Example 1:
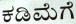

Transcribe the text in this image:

ಕಡಿಮೆಗೆ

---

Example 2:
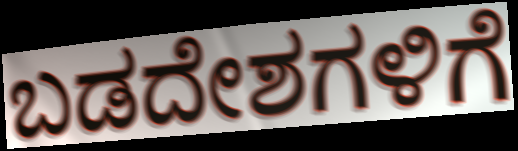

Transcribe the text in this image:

ಬಡದೇಶಗಳಿಗೆ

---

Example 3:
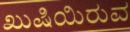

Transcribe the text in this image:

ಖುಷಿಯಿರುವ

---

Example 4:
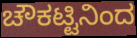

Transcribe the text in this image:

ಚೌಕಟ್ಟಿನಿಂದ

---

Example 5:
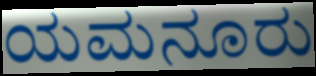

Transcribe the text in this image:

ಯಮನೂರು